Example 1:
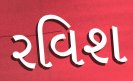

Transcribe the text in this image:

રવિશ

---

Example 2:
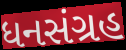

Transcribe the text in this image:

ધનસંગ્રહ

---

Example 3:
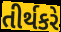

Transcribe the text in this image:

તીર્થકરે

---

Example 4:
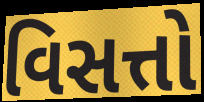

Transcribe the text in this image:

વિસત્તો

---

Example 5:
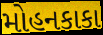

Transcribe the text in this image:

મોહનકાકા